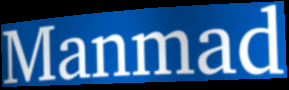
Manmad